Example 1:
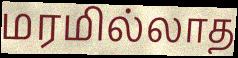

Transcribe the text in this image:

மரமில்லாத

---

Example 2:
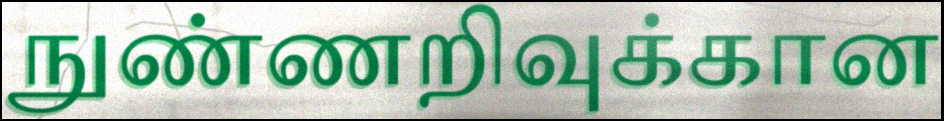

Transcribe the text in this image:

நுண்ணறிவுக்கான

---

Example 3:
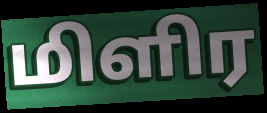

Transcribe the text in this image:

மிளிர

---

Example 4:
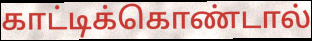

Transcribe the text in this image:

காட்டிக்கொண்டால்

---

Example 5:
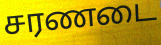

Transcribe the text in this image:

சரணடை